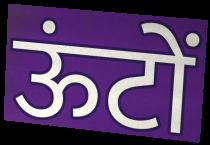
ऊंटों